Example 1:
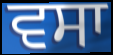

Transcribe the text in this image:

ਵਸਾ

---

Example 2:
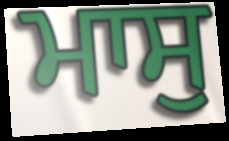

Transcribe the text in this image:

ਮਾਸੁ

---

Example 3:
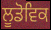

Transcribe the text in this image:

ਲੂਡੋਵਿਕ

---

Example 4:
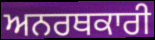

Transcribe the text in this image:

ਅਨਰਥਕਾਰੀ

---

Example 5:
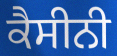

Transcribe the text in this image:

ਕੈਸੀਨੀ